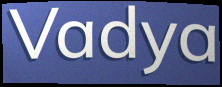
Vadya